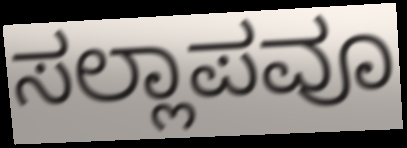
ಸಲ್ಲಾಪವೂ